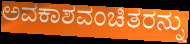
ಅವಕಾಶವಂಚಿತರನ್ನು